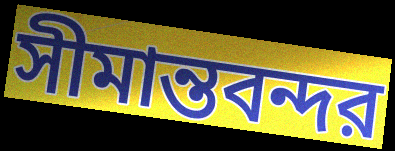
সীমান্তবন্দর